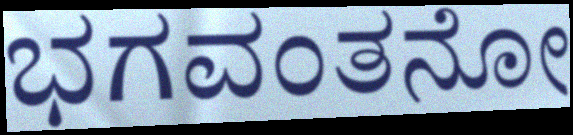
ಭಗವಂತನೋ